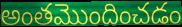
అంతమొందించడం